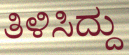
ತಿಳಿಸಿದ್ದು